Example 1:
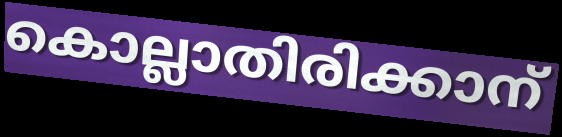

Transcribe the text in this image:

കൊല്ലാതിരിക്കാന്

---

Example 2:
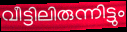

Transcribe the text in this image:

വീട്ടിലിരുന്നിട്ടും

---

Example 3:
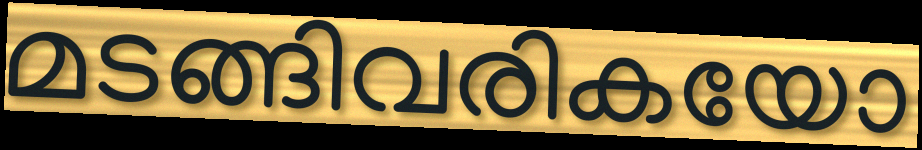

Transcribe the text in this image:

മടങ്ങിവരികയോ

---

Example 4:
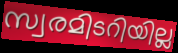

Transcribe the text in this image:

സ്വരമിടറിയില്ല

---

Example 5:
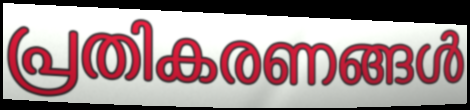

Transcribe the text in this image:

പ്രതികരണങ്ങൾ